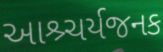
આશ્ર્ચર્યજનક